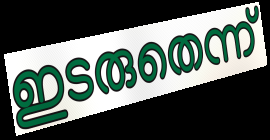
ഇടരുതെന്ന്